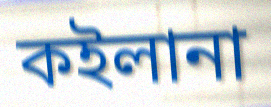
কইলানা